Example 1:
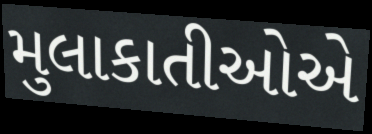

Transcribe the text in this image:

મુલાકાતીઓએ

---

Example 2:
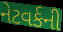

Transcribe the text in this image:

નેટવર્કની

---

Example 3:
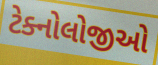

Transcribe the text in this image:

ટેક્નોલોજીઓ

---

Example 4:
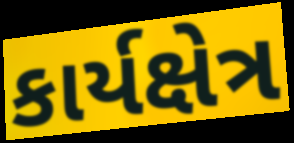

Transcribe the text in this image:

કાર્યક્ષેત્ર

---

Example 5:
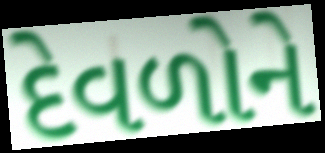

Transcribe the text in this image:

દેવળોને